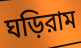
ঘড়িরাম